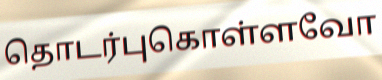
தொடர்புகொள்ளவோ